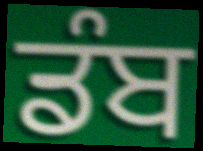
ਡੰਬ